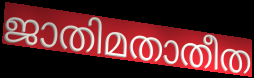
ജാതിമതാതീത